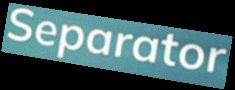
Separator